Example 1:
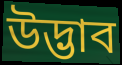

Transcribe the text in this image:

উদ্ভাব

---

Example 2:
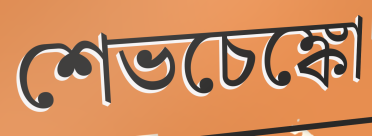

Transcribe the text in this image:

শেভচেঙ্কো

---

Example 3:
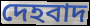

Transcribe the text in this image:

দেহবাদ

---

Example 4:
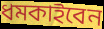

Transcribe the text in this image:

ধমকাইবেন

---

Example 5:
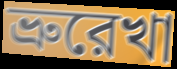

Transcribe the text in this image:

ভ্রুরেখা